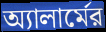
অ্যালার্মের